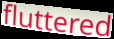
fluttered